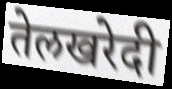
तेलखरेदी